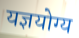
यज्ञयोग्य